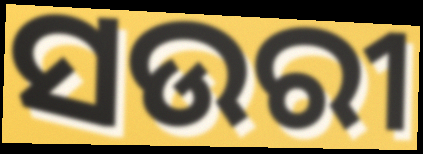
ସଉରୀ